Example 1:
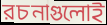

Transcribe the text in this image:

রচনাগুলোই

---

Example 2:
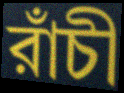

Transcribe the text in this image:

রাঁচী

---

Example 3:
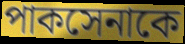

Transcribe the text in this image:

পাকসেনাকে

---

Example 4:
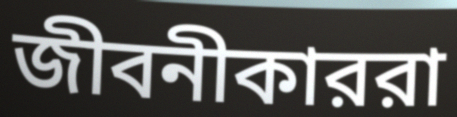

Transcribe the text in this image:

জীবনীকাররা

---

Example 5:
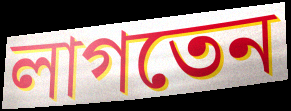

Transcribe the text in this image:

লাগতেন